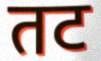
तट